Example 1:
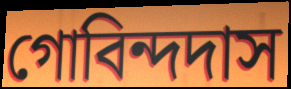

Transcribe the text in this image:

গোবিন্দদাস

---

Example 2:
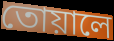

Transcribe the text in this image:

তোয়ালে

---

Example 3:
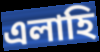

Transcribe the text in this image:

এলাহি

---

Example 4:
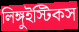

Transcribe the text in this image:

লিঙ্গুইস্টিকস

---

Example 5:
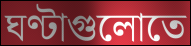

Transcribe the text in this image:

ঘণ্টাগুলোতে